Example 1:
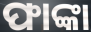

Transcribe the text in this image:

ଫାଙ୍କା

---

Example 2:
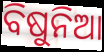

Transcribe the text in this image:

ବିଷୁନିଆ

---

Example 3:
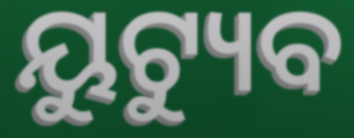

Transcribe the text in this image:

ୟୁଟ୍ୟୁବ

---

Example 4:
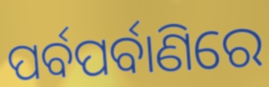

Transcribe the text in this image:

ପର୍ବପର୍ବାଣିରେ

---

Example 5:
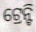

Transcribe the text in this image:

ଟ୍ରେନ୍ଟି